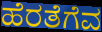
ಹೆರತೆಗೆವ